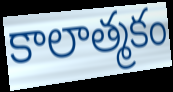
కాలాత్మకం